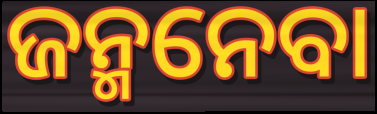
ଜନ୍ମନେବା